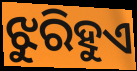
ଝୁରିହୁଏ